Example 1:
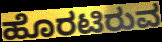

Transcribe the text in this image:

ಹೊರಟಿರುವ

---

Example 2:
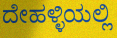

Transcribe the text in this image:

ದೇಹಳ್ಳಿಯಲ್ಲಿ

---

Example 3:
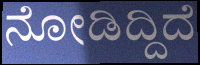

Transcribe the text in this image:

ನೋಡಿದ್ದಿದೆ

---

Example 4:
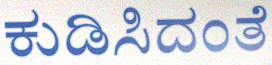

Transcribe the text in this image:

ಕುಡಿಸಿದಂತೆ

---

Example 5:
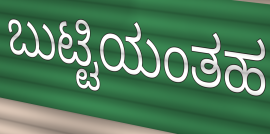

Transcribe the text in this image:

ಬುಟ್ಟಿಯಂತಹ